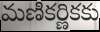
మణికర్ణికకు